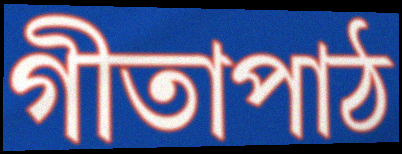
গীতাপাঠ